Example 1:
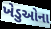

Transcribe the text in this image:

ખેડુઓના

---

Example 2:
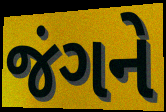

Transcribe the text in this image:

જંગને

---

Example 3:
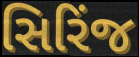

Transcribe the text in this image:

સિરિંજ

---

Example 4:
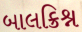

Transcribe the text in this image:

બાલક્રિશ્ન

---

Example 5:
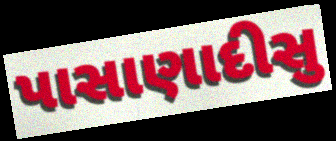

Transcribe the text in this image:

પાસાણાદીસુ